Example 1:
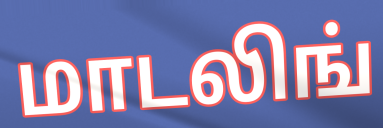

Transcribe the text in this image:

மாடலிங்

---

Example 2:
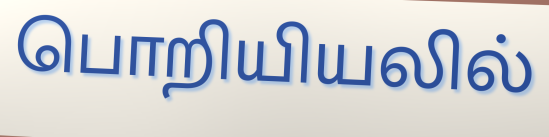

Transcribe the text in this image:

பொறியியலில்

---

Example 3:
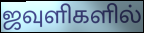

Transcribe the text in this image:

ஜவுளிகளில்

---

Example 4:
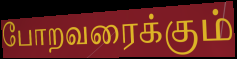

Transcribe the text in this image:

போறவரைக்கும்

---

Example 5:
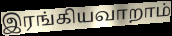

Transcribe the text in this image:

இரங்கியவாறாம்